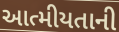
આત્મીયતાની